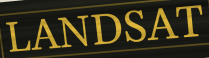
LANDSAT